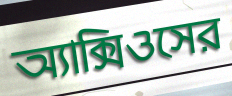
অ্যাক্সিওসের